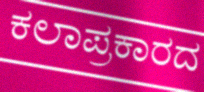
ಕಲಾಪ್ರಕಾರದ